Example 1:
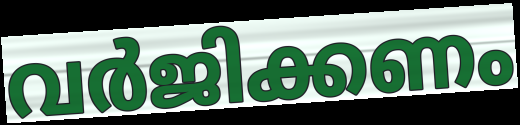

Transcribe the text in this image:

വർജിക്കണം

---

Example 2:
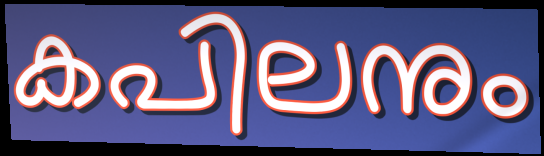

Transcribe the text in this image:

കപിലനും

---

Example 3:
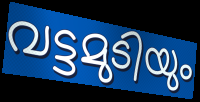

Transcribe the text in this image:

വട്ടമുടിയും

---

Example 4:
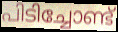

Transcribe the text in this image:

പിടിച്ചോണ്ട്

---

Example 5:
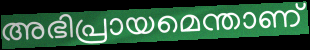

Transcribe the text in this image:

അഭിപ്രായമെന്താണ്